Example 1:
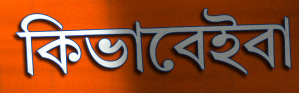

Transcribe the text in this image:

কিভাবেইবা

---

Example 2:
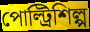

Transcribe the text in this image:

পোল্ট্রিশিল্প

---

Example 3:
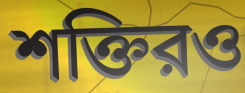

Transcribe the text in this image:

শক্তিরও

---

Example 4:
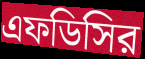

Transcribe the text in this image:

এফডিসির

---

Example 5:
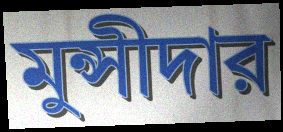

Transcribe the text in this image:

মুন্সীদার